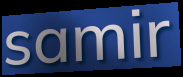
samir